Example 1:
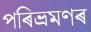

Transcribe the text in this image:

পৰিভ্ৰমণৰ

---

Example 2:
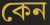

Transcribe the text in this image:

কেন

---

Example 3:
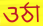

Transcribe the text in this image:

ওঠা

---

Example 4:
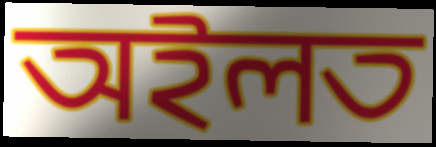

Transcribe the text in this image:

অইলত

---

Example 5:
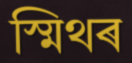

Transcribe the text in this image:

স্মিথৰ